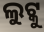
ଲୁଟ୍କୁ